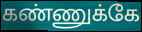
கண்ணுக்கே